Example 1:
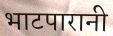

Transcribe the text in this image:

भाटपारानी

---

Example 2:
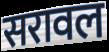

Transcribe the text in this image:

सरावल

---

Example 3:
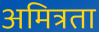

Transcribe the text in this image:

अमित्रता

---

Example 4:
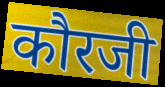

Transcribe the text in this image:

कौरजी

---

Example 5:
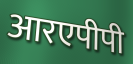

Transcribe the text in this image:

आरएपीपी